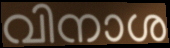
വിനാശ